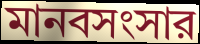
মানবসংসার